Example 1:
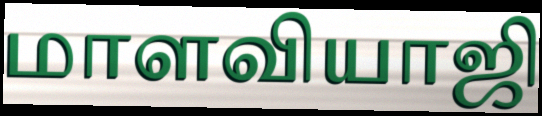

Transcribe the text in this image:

மாளவியாஜி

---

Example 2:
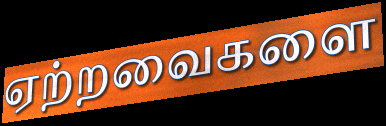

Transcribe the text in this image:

ஏற்றவைகளை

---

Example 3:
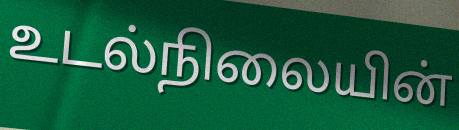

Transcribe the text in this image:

உடல்நிலையின்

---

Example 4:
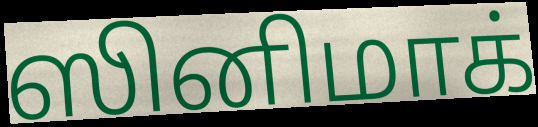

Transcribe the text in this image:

ஸினிமாக்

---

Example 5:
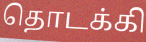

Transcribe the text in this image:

தொடக்கி